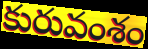
కురువంశం